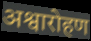
अश्वारोहण